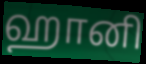
ஹானி